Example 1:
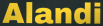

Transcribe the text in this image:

Alandi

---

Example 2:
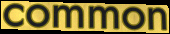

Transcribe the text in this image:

common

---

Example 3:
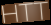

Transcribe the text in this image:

HTT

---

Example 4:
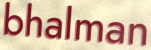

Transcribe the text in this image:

bhalman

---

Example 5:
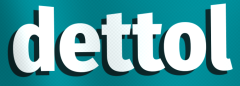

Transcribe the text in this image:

dettol